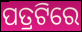
ପତ୍ରଟିରେ